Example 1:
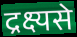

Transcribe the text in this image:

द्रक्ष्यसे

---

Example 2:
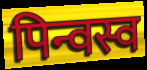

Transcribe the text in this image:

पिन्वस्व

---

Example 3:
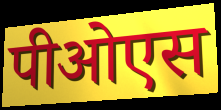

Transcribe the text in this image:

पीओएस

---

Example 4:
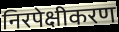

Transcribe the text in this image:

निरपेक्षीकरण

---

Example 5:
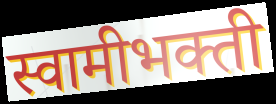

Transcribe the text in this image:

स्वामीभक्ती